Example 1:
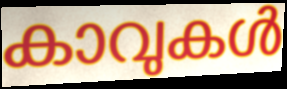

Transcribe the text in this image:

കാവുകൾ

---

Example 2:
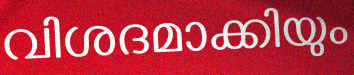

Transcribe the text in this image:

വിശദമാക്കിയും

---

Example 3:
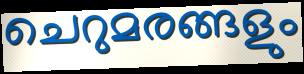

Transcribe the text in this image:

ചെറുമരങ്ങളും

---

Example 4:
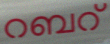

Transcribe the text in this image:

റബറ്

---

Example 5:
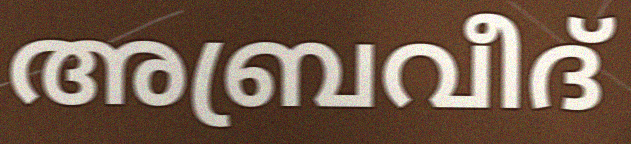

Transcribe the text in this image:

അബ്രവീദ്